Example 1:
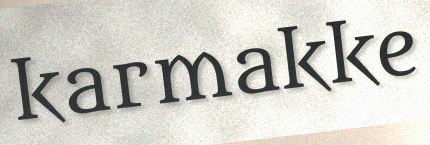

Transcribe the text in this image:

karmakke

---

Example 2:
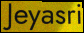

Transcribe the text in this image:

Jeyasri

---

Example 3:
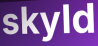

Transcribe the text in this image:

skyld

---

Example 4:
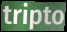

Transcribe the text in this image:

tripto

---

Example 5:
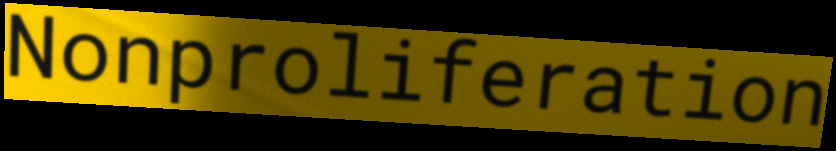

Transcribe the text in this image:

Nonproliferation